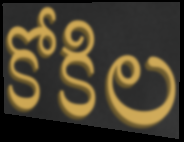
కోకిల